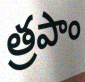
త్రపాం